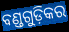
ବଣ୍ଡଗୁଡ଼ିକର